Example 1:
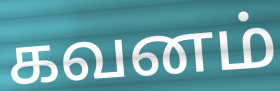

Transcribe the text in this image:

கவனம்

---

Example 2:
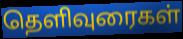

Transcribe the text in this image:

தெளிவுரைகள்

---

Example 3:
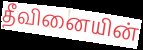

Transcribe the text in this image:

தீவினையின்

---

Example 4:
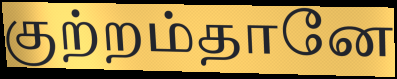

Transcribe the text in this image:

குற்றம்தானே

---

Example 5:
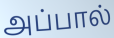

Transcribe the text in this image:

அப்பால்